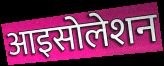
आइसोलेशन